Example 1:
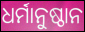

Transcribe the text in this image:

ଧର୍ମାନୁଷ୍ଠାନ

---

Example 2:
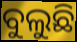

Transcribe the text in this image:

ବୁଲୁଛି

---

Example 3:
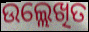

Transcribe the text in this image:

ଉଲ୍ଲେଖିତ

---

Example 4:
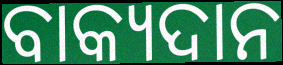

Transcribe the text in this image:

ବାକ୍ୟଦାନ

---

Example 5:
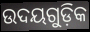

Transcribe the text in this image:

ଉଦୟଗୁଡ଼ିକ